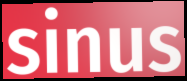
sinus